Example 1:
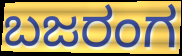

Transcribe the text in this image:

ಬಜರಂಗ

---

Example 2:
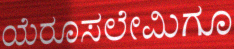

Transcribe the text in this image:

ಯೆರೂಸಲೇಮಿಗೂ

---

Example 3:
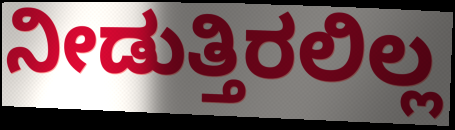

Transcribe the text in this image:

ನೀಡುತ್ತಿರಲಿಲ್ಲ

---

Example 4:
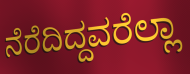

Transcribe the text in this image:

ನೆರೆದಿದ್ದವರೆಲ್ಲಾ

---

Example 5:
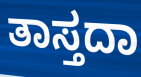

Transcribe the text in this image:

ತಾಸ್ತದಾ